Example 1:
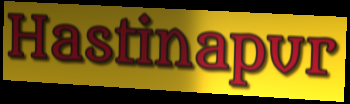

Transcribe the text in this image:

Hastinapur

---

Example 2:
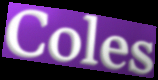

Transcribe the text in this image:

Coles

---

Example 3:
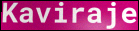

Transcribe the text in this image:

Kaviraje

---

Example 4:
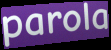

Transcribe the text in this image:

parola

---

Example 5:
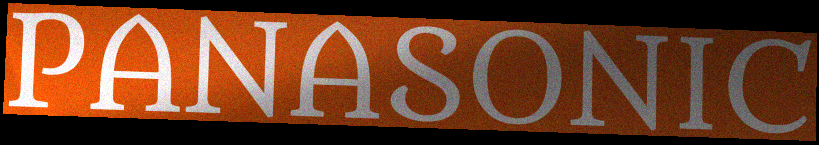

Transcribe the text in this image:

PANASONIC